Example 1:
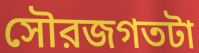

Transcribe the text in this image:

সৌরজগতটা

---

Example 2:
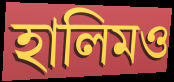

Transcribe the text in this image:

হালিমও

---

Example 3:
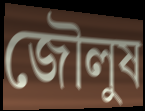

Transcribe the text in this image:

জৌলুষ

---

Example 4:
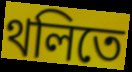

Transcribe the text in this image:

থলিতে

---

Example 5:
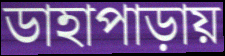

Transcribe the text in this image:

ডাহাপাড়ায়